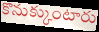
కొనుక్కుంటారు